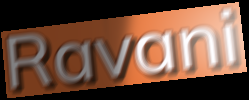
Ravani